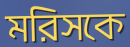
মরিসকে